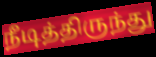
நீடித்திருந்து